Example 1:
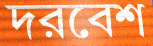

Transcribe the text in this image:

দরবেশ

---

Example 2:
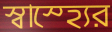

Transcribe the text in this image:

স্বাস্হ্যের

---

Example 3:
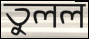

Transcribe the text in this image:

তুলল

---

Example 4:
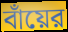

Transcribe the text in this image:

বাঁয়ের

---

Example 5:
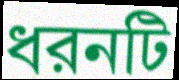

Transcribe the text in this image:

ধরনটি